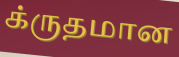
க்ருதமான